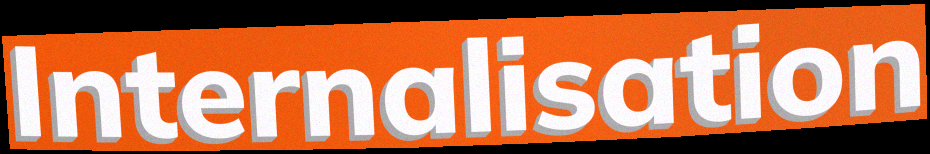
Internalisation